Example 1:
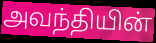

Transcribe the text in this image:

அவந்தியின்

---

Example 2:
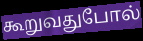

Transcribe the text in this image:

கூறுவதுபோல்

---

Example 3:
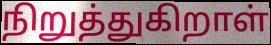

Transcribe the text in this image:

நிறுத்துகிறாள்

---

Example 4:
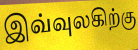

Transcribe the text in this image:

இவ்வுலகிற்கு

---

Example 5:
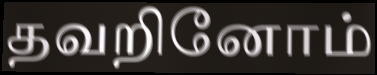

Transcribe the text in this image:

தவறினோம்